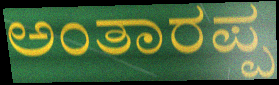
ಅಂತಾರಪ್ಪ